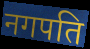
नगपति